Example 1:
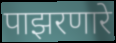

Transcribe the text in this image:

पाझरणारे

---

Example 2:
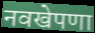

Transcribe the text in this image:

नवखेपणा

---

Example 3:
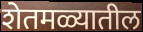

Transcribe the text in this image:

शेतमळ्यातील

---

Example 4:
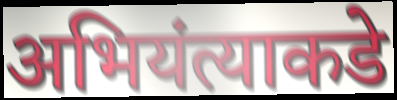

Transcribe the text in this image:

अभियंत्याकडे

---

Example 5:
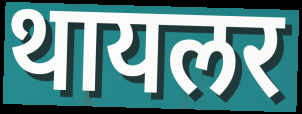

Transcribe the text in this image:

थायलर